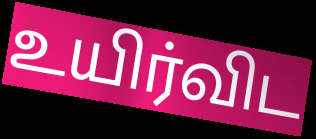
உயிர்விட